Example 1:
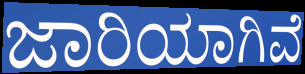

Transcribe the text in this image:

ಜಾರಿಯಾಗಿವೆ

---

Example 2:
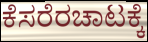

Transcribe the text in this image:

ಕೆಸರೆರಚಾಟಕ್ಕೆ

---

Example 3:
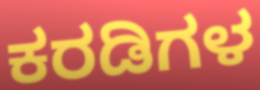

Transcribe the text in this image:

ಕರಡಿಗಳ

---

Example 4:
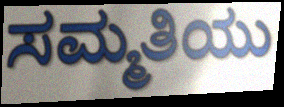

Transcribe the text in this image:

ಸಮ್ಮತಿಯು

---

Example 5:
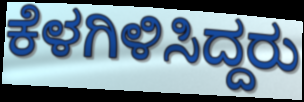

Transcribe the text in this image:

ಕೆಳಗಿಳಿಸಿದ್ದರು